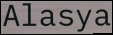
Alasya